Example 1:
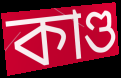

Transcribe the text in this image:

কাণ্ড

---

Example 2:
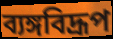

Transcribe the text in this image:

ব্যঙ্গবিদ্রূপ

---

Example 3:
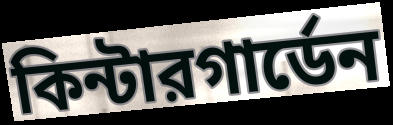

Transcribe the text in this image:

কিন্টারগার্ডেন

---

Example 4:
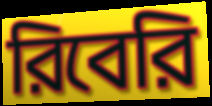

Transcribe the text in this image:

রিবেরি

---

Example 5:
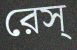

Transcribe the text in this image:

রেস্